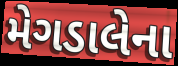
મેગડાલેના